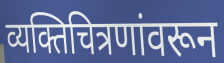
व्यक्तिचित्रणांवरून